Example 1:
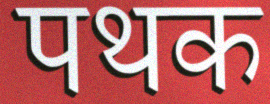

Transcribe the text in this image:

पथक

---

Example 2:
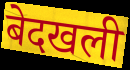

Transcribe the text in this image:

बेदखली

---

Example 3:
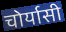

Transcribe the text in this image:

चोर्यासी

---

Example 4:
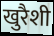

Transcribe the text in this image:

खुरैशी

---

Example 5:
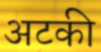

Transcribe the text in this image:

अटकी